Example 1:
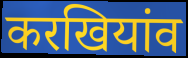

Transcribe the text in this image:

करखियांव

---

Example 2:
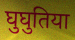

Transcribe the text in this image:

घुघुतिया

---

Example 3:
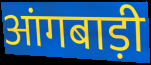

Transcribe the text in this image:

आंगबाड़ी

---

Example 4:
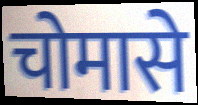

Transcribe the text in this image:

चोमासे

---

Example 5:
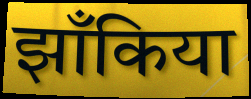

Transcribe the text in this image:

झाँकिया